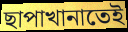
ছাপাখানাতেই